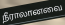
நீராலானவை